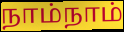
நாம்நாம்